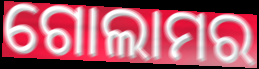
ଗୋଲାମର